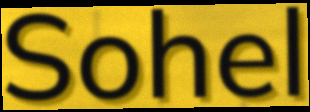
Sohel